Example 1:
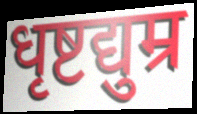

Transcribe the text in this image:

धृष्टद्युम्र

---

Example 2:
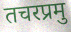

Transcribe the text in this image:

तचरप्रमु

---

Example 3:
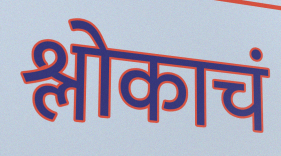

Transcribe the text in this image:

श्लोकाचं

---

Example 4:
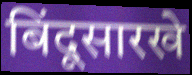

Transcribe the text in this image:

बिंदूसारखे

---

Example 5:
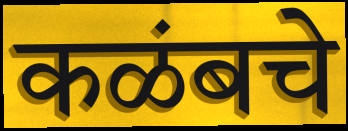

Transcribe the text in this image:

कळंबचे